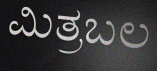
ಮಿತ್ರಬಲ